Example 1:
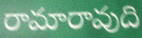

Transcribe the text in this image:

రామారావుది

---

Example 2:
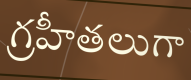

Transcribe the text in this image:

గ్రహీతలుగా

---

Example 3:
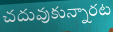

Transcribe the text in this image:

చదువుకున్నారట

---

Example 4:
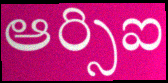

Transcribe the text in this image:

ఆర్సిఐ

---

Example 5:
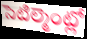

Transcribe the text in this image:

సెటిల్మెంట్లో